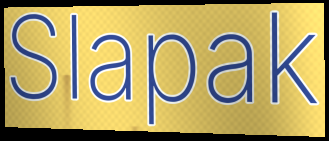
Slapak